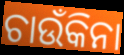
ଚାଉଁକିନା